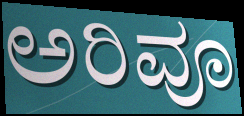
ಅರಿವೂ